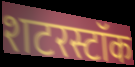
शटरस्‍टॉक